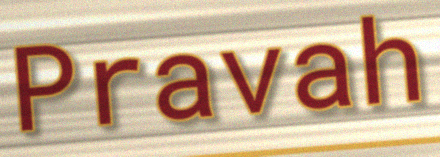
Pravah